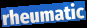
rheumatic